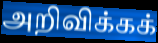
அறிவிக்கக்